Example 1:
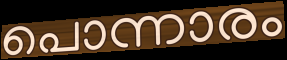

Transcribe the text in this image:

പൊന്നാരം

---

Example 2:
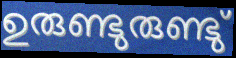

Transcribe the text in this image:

ഉരുണ്ടുരുണ്ടു്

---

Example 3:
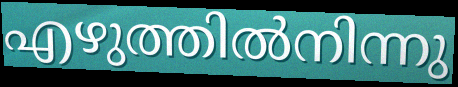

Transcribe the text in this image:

എഴുത്തിൽനിന്നു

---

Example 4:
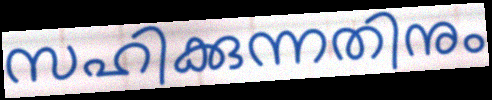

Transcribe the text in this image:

സഹിക്കുന്നതിനും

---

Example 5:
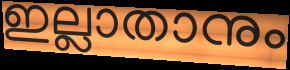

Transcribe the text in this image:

ഇല്ലാതാനും